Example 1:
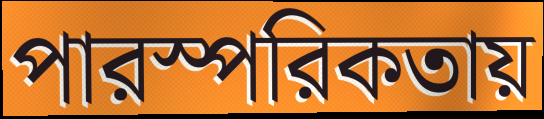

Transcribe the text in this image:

পারস্পরিকতায়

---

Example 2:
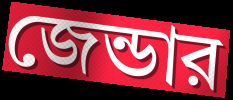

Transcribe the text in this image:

জেন্ডার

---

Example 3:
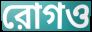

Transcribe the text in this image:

রোগও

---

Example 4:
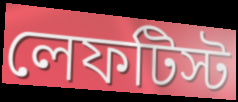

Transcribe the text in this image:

লেফটিস্ট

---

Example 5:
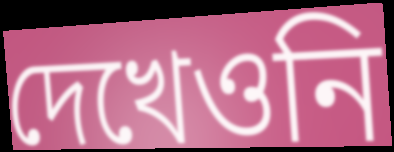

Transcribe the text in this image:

দেখেওনি